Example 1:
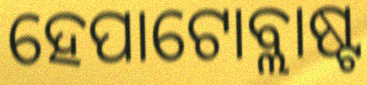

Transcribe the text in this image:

ହେପାଟୋବ୍ଲାଷ୍ଟ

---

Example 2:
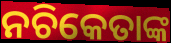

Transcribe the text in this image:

ନଚିକେତାଙ୍କ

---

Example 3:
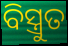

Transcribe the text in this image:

ବିସ୍ତ୍ରୁତ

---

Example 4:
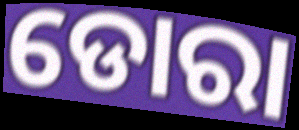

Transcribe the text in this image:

ଡୋରା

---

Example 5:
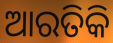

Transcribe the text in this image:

ଆରତିକି